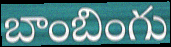
బాంబింగు